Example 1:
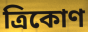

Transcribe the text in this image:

ত্ৰিকোণ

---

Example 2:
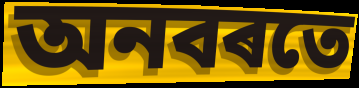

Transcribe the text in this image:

অনবৰতে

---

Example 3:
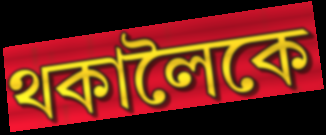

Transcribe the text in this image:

থকালৈকে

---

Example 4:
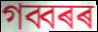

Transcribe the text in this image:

গব্বৰৰ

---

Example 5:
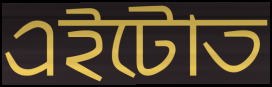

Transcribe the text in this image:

এইটোত